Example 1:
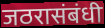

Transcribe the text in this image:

जठरासंबंधी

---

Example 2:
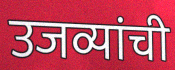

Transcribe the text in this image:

उजव्यांची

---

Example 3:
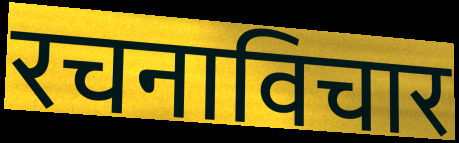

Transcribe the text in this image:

रचनाविचार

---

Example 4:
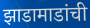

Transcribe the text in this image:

झाडामाडांची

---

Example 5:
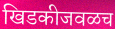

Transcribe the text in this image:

खिडकीजवळच